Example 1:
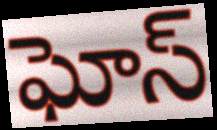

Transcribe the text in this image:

ఘోస్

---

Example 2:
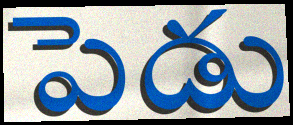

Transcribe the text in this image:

పెడు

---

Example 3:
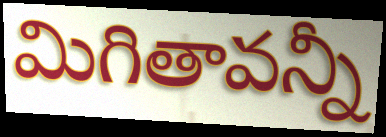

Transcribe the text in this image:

మిగితావన్నీ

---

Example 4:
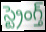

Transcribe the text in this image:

స్ట్రెంగ్త్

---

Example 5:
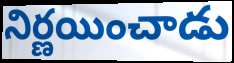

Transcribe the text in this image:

నిర్ణయించాడు